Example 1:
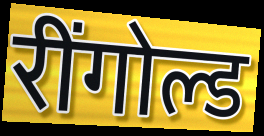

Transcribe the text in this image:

रींगोल्ड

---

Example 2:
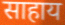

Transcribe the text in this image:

साहाय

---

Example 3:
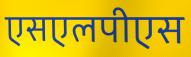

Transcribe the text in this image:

एसएलपीएस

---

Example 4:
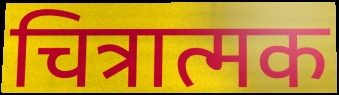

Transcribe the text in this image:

चित्रात्मक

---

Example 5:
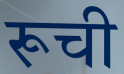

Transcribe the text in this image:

रूची